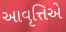
આવૃત્તિએ